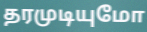
தரமுடியுமோ